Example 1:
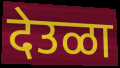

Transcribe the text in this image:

देउळा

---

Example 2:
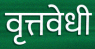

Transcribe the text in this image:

वृत्तवेधी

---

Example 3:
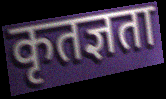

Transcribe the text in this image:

कृतज्ञता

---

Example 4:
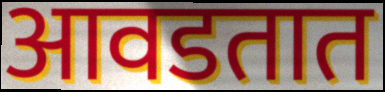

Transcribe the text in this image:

आवडतात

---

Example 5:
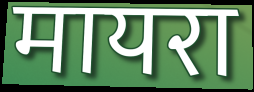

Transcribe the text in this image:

मायरा